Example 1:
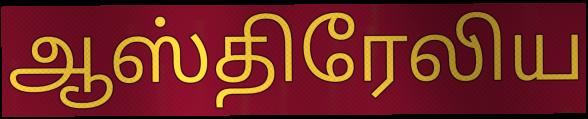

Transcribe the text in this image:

ஆஸ்திரேலிய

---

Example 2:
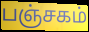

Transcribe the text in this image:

பஞ்சகம்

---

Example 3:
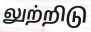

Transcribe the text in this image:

லுற்றிடு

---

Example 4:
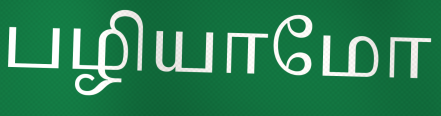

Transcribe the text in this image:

பழியாமோ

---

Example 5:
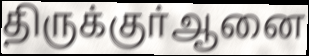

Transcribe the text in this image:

திருக்குர்ஆனை